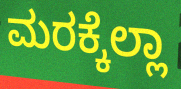
ಮರಕ್ಕೆಲ್ಲಾ